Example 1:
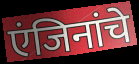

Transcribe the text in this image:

एंजिनांचे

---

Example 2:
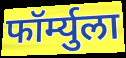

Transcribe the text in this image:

फॉर्म्युला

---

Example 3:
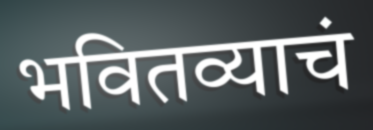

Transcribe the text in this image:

भवितव्याचं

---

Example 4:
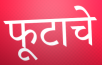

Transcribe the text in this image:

फूटाचे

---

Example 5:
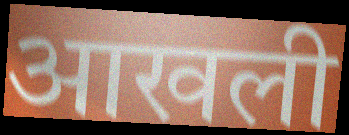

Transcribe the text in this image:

आखली